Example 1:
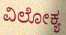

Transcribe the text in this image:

ವಿಲೋಕ್ಯ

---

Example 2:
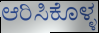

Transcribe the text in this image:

ಆರಿಸಿಕೊಳ್ಳ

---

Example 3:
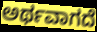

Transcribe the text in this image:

ಅರ್ಥವಾಗದೆ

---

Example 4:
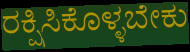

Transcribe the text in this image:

ರಕ್ಷಿಸಿಕೊಳ್ಳಬೇಕು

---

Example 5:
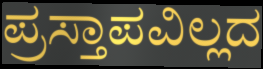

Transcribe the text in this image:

ಪ್ರಸ್ತಾಪವಿಲ್ಲದ